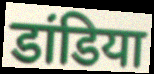
डांडिया